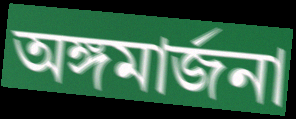
অঙ্গমার্জনা